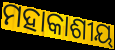
ମହାକାଶୀୟ